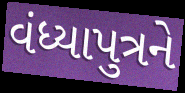
વંધ્યાપુત્રને